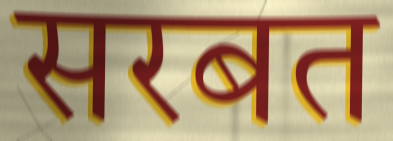
सरबत